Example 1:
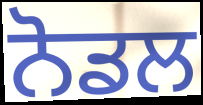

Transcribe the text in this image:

ਨੋਡਲ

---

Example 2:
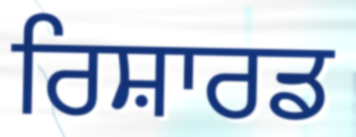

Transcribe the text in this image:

ਰਿਸ਼ਾਰਡ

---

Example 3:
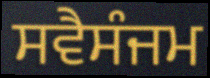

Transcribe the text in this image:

ਸਵੈਸੰਜਮ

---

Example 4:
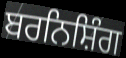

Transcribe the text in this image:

ਬਰਨਿਸ਼ਿੰਗ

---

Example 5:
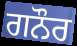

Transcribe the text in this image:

ਗਨੌਰ